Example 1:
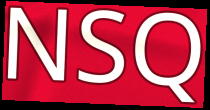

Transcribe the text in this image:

NSQ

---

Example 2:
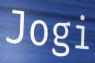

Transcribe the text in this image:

Jogi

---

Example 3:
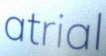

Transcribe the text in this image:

atrial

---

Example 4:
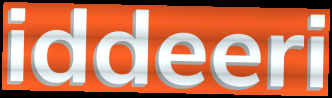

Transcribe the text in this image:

iddeeri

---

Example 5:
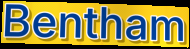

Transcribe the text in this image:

Bentham